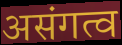
असंगत्व